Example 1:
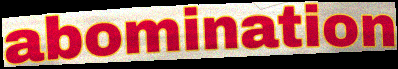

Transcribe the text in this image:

abomination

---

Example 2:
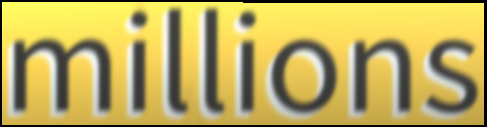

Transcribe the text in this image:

millions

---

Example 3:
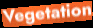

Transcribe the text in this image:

Vegetation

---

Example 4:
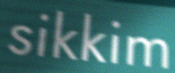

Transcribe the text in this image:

sikkim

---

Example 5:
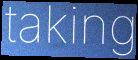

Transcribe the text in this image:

taking